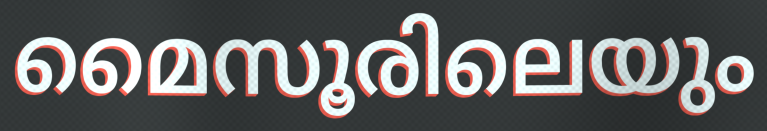
മൈസൂരിലെയും